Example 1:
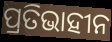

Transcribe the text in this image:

ପ୍ରତିଭାହୀନ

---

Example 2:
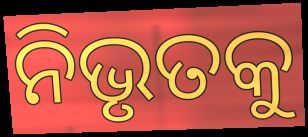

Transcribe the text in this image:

ନିଭୃତକୁ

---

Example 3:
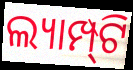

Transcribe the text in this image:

ଲ୍ୟାମ୍ପ୍‍ଟି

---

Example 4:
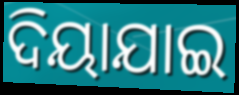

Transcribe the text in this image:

ଦିୟାଯାଇ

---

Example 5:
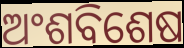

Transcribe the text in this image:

ଅଂଶବିଶେଷ